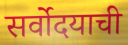
सर्वोदयाची